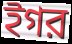
ইগর